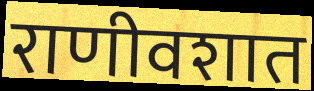
राणीवशात